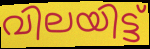
വിലയിട്ട്